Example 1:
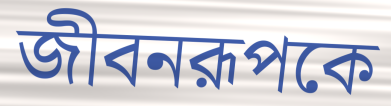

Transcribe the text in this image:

জীবনরূপকে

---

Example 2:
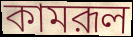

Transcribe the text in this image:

কামরূল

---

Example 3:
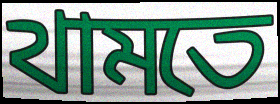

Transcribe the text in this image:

থামতে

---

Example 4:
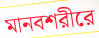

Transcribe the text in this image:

মানবশরীরে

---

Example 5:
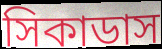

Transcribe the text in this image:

সিকাডাস